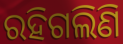
ରହିଗଲିଣି